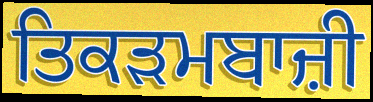
ਤਿਕੜਮਬਾਜ਼ੀ